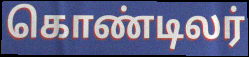
கொண்டிலர்